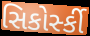
સિકોર્સ્કી